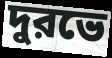
দুরভে